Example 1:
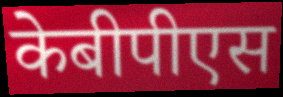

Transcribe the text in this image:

केबीपीएस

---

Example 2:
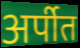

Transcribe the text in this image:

अर्पीत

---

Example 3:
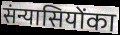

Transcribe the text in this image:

संन्यासियोंका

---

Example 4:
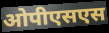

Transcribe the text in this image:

ओपीएसएस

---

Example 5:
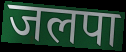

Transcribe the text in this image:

जलपा